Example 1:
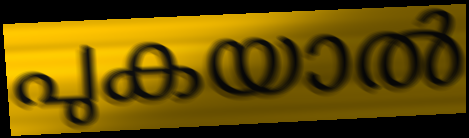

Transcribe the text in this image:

പുകയാൽ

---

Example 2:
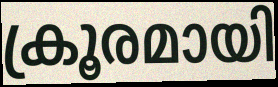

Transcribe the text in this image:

ക്രൂരമായി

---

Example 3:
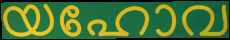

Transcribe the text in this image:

യഹോവ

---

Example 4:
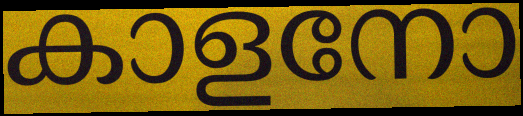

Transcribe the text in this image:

കാളനോ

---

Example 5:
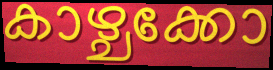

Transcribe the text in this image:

കാഴ്ചക്കോ